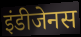
इंडीजेनस